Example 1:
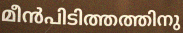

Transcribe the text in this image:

മീൻപിടിത്തത്തിനു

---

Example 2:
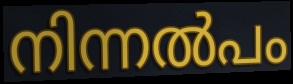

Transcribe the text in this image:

നിന്നൽപം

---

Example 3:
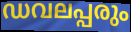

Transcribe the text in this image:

ഡവലപ്പരും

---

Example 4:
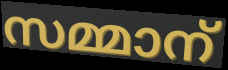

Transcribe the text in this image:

സമ്മാന്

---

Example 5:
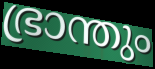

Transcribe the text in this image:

ഭ്രാന്തും